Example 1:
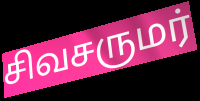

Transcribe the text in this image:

சிவசருமர்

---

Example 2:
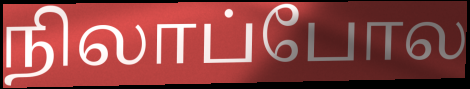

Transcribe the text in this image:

நிலாப்போல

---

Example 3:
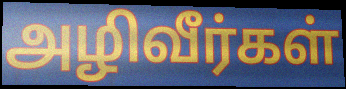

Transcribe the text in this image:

அழிவீர்கள்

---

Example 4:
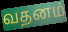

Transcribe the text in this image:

வதனம்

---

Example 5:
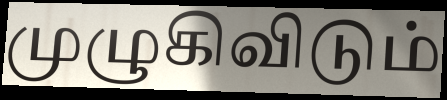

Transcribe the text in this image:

முழுகிவிடும்